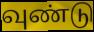
வுண்டு